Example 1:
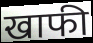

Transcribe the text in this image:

खाफी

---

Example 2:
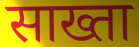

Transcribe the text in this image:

साख्ता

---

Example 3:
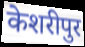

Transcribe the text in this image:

केशरीपुर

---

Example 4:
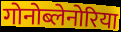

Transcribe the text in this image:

गोनोब्लेनोरिया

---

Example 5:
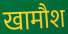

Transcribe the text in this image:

खामौश